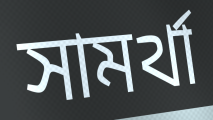
সামর্থা